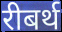
रीबर्थ